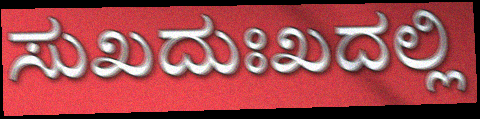
ಸುಖದುಃಖದಲ್ಲಿ